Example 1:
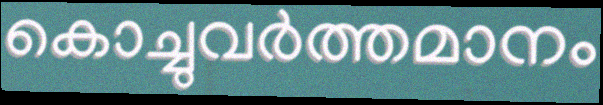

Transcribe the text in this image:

കൊച്ചുവർത്തമാനം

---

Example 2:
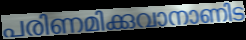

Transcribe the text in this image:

പരിണമിക്കുവാനാണിട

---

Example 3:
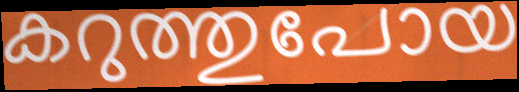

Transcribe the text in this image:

കറുത്തുപോയ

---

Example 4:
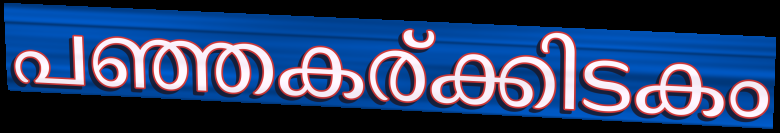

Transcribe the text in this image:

പഞ്ഞകര്ക്കിടകം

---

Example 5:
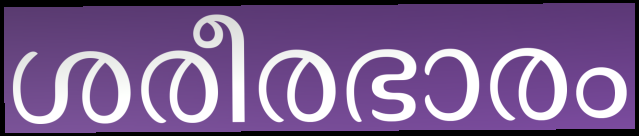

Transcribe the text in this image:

ശരീരഭാരം